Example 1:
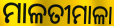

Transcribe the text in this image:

ମାଳତୀମାଳା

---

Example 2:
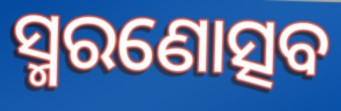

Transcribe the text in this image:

ସ୍ମରଣୋତ୍ସବ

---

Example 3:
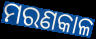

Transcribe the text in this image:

ମରଣକାଳ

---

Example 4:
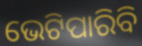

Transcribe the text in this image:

ଭେଟିପାରିବି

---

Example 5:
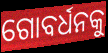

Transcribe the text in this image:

ଗୋବର୍ଧନକୁ